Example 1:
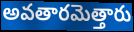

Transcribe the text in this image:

అవతారమెత్తారు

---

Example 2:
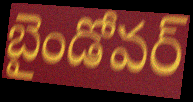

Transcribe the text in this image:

బైండోవర్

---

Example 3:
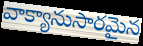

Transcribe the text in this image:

వాక్యానుసారమైన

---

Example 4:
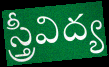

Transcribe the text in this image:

స్త్రీవిద్య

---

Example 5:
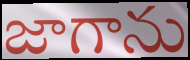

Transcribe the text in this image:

జాగాను